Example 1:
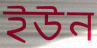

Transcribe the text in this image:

ইউন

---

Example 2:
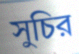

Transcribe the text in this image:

সুচির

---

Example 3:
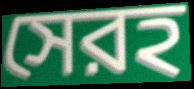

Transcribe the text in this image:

সেরহ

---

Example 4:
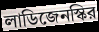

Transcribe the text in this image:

লাডিজেনস্কির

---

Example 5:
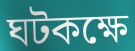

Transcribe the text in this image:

ঘটকক্ষে